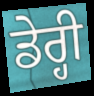
ਡੇਰ੍ਹੀ